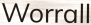
Worrall